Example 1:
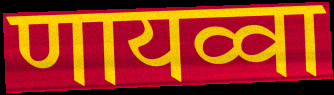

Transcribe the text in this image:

णायव्वा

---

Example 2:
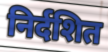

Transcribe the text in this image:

निर्दशित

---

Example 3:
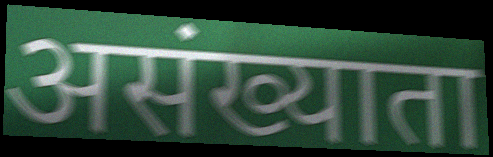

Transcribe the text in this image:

असंख्याता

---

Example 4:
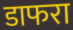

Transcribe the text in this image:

डाफरा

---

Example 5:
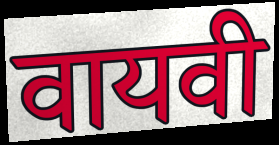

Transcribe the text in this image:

वायवी